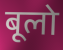
बूलो